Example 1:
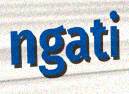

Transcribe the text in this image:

ngati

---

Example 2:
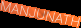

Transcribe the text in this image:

MANJUNATH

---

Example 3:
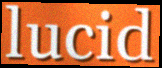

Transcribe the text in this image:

lucid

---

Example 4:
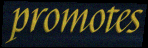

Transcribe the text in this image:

promotes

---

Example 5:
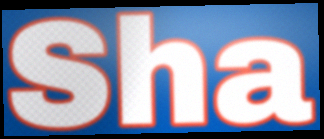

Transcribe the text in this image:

Sha